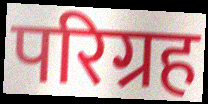
परिग्रह